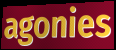
agonies